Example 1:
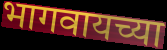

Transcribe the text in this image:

भागवायच्या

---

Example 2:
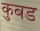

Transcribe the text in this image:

कुबड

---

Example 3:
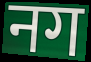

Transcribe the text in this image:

नग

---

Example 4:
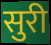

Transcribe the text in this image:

सुरी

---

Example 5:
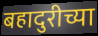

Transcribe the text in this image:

बहादुरीच्या